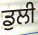
ਡੁਲੀ